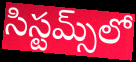
సిస్టమ్స్‌లో